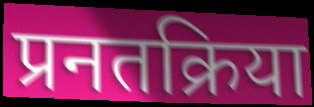
प्रनतक्रिया